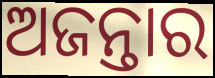
ଅଜନ୍ତାର